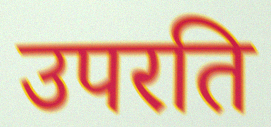
उपरति